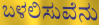
ಬಳಲಿಸುವೆನು